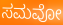
ಸಮವೋ